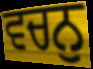
ਵਚਨੁ